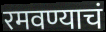
रमवण्याचं